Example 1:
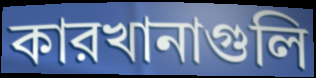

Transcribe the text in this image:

কারখানাগুলি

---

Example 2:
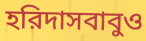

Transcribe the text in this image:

হরিদাসবাবুও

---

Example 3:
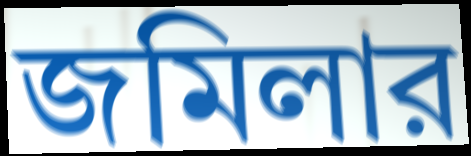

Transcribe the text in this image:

জমিলার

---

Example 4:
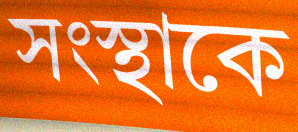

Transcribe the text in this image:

সংস্থাকে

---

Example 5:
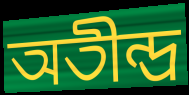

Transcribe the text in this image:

অতীন্দ্র